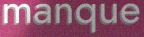
manque